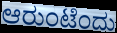
ಆರುಂಟೆಂದು